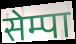
सेम्पा